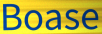
Boase